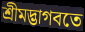
শ্রীমদ্ভাগবতে